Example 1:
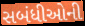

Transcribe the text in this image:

સબંધીઓની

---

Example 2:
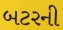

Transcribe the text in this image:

બટરની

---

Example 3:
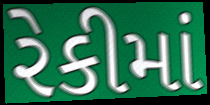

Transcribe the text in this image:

રેકીમાં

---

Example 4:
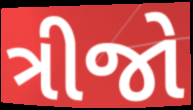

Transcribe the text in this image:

ત્રીજો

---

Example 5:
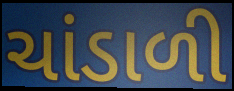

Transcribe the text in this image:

ચાંડાળી